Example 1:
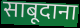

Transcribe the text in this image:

साबूदाना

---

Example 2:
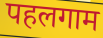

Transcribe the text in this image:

पहलगाम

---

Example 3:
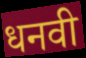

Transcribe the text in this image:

धनवी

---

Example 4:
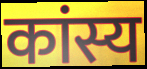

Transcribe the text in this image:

कांस्य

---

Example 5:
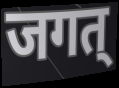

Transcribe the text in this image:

जगत्